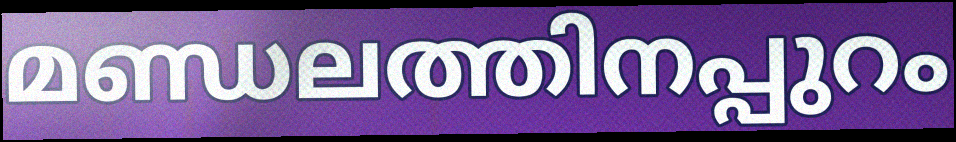
മണ്ഡലത്തിനപ്പുറം